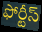
ఫోర్టీస్